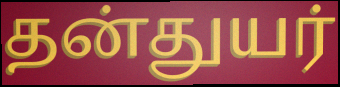
தன்துயர்